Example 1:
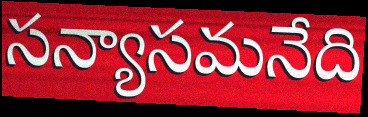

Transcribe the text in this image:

సన్యాసమనేది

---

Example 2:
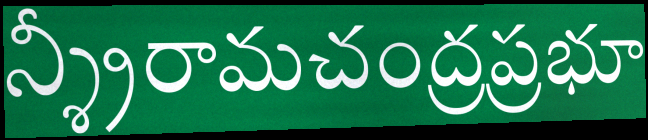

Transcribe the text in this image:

న్శ్రీరామచంద్రప్రభూ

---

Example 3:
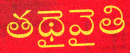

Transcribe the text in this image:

తథైవైతి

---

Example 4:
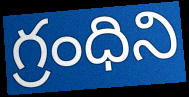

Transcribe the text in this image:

గ్రంధిని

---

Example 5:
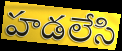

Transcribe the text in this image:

హడలేసి